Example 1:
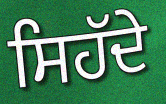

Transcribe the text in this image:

ਸਿਹੱਦੇ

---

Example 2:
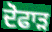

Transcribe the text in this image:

ਦੋਫਾੜ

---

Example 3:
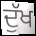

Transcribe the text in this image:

ਦੁੱਖ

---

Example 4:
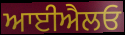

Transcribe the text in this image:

ਆਈਐਲਓ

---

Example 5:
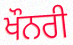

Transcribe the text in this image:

ਖੌਨਰੀ